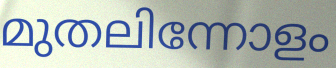
മുതലിന്നോളം